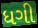
ધગી